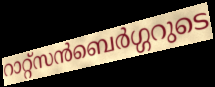
റാറ്റ്സൻബെർഗ്ഗറുടെ